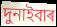
দুনাইবাৰ